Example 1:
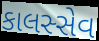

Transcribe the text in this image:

કાલસ્સેવ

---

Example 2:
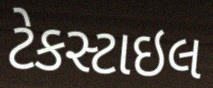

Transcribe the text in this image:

ટેકસ્ટાઇલ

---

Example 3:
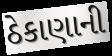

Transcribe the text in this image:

ઠેકાણાની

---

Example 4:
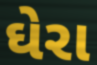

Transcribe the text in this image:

ઘેરા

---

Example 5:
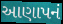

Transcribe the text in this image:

આણાપનં